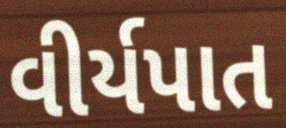
વીર્યપાત